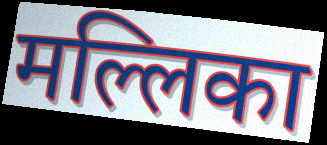
मल्लिका